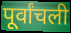
पूर्वांचली